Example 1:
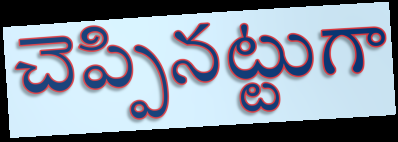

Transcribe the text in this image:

చెప్పినట్టుగా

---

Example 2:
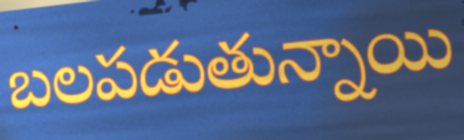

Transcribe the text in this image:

బలపడుతున్నాయి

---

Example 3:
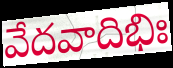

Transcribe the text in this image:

వేదవాదిభిః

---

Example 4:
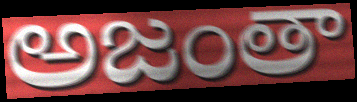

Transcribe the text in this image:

అజంతా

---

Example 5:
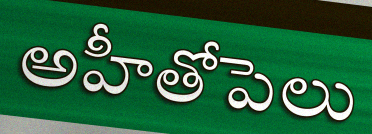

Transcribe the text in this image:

అహీతోపెలు